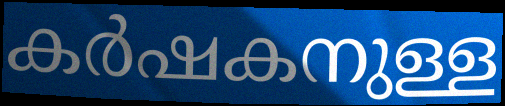
കർഷകനുള്ള